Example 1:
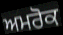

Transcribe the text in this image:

ਅਮਰੋਕ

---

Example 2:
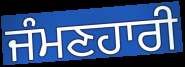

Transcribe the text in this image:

ਜੰਮਣਹਾਰੀ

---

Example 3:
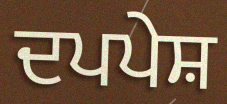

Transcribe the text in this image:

ਦਪਪੇਸ਼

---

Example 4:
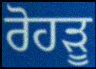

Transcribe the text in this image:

ਰੋਹੜੂ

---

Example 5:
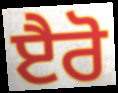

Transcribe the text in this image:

ੲੈਰੋ